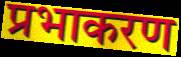
प्रभाकरण